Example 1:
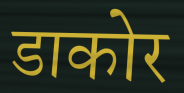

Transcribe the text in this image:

डाकोर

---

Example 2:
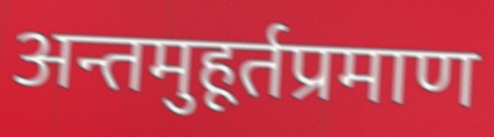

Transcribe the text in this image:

अन्तमुहूर्तप्रमाण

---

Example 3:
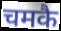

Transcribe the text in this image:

चमकै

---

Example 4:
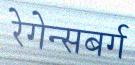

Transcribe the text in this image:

रेगेन्सबर्ग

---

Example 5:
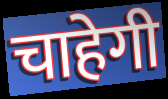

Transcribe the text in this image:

चाहेगी